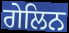
ਗੇਲਿਨ